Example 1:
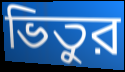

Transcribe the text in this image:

ভিতুর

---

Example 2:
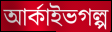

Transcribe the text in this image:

আর্কাইভগল্প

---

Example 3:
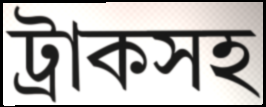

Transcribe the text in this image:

ট্রাকসহ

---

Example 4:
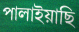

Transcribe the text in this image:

পালাইয়াছি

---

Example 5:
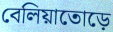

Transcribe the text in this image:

বেলিয়াতোড়ে